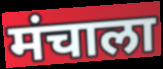
मंचाला